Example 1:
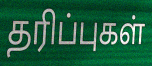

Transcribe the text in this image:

தரிப்புகள்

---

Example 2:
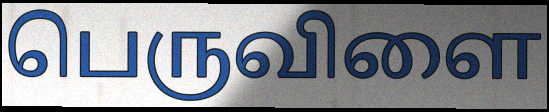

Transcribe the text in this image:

பெருவிளை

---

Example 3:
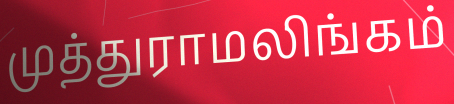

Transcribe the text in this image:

முத்துராமலிங்கம்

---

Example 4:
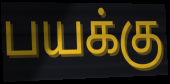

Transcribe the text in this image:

பயக்கு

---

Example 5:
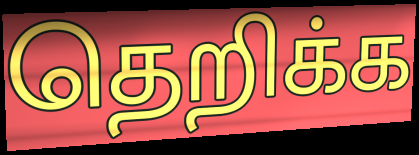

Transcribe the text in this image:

தெறிக்க